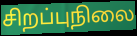
சிறப்புநிலை